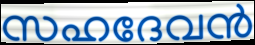
സഹദേവൻ